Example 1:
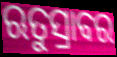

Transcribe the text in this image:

ଋତୁସ୍ରାବର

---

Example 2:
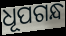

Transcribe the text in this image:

ଧୂପଗନ୍ଧ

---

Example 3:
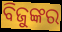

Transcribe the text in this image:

ବିଜୁଙ୍କର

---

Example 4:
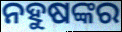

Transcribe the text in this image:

ନହୁଷଙ୍କର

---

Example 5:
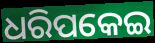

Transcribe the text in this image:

ଧରିପକେଇ